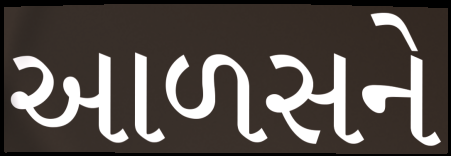
આળસને